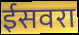
ईसवरा